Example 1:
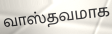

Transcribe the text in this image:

வாஸ்தவமாக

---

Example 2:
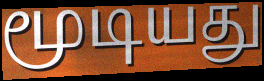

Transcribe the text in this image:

மூடியது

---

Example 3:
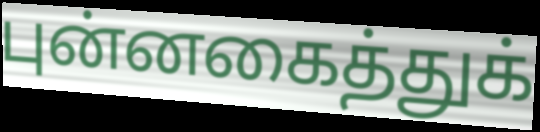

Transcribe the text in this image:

புன்னகைத்துக்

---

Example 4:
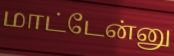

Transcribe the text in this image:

மாட்டேன்னு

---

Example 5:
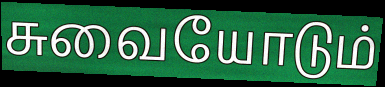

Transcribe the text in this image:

சுவையோடும்